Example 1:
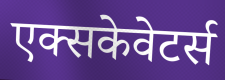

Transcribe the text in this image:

एक्सकेवेटर्स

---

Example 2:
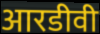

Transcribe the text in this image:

आरडीवी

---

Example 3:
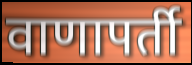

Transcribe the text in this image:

वाणापर्ती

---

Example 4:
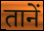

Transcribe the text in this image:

तानें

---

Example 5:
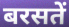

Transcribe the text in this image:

बरसतें